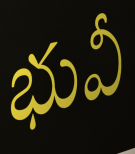
భువీ